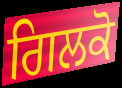
ਗਿਲਕੋ